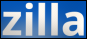
zilla